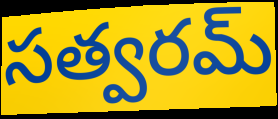
సత్వరమ్